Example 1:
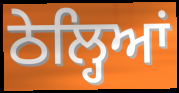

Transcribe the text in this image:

ਠੇਲ੍ਹਿਆਂ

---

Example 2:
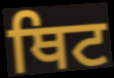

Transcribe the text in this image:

ਥਿਟ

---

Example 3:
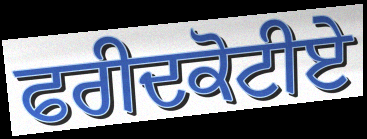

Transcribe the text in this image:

ਫਰੀਦਕੋਟੀਏ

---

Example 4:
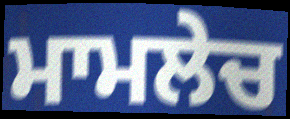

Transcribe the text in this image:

ਮਾਮਲੇਚ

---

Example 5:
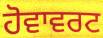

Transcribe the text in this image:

ਹੋਵਾਵਰਟ